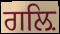
ਗਲ਼ਿ